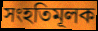
সংহতিমূলক